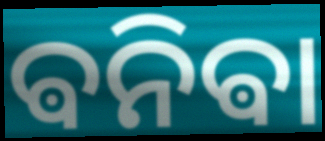
ଵନିଵା